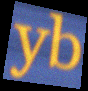
yb